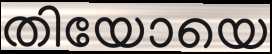
തിയോയെ